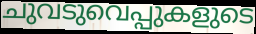
ചുവടുവെപ്പുകളുടെ